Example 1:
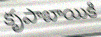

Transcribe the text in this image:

కృపాబాయికి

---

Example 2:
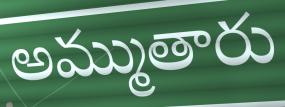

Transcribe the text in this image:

అమ్ముతారు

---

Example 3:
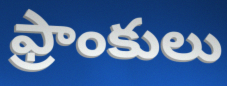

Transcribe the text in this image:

ఫ్రాంకులు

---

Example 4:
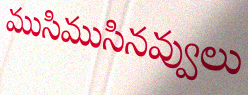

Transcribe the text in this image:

ముసిముసినవ్వులు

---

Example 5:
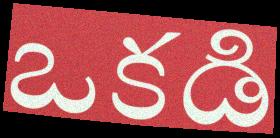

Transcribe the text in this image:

ఒకడి